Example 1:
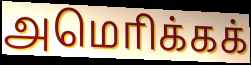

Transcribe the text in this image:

அமெரிக்கக்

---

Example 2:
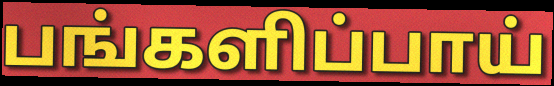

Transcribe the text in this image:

பங்களிப்பாய்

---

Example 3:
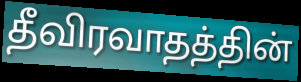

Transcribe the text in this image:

தீவிரவாதத்தின்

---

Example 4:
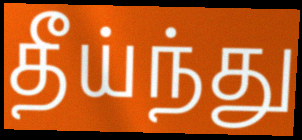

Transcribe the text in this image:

தீய்ந்து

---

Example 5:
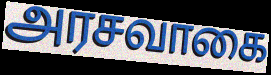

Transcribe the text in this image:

அரசவாகை